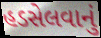
હડસેલવાનું